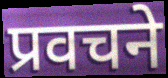
प्रवचने